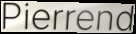
Pierrend